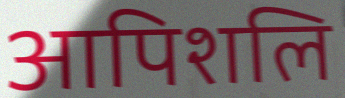
आपिशलि